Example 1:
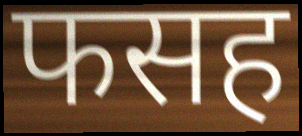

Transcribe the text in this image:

फसह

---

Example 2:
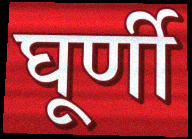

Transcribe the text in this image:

घूर्णी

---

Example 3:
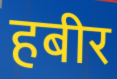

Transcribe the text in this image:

हबीर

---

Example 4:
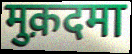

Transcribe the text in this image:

मुक़दमा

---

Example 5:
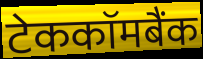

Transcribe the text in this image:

टेककॉमबैंक